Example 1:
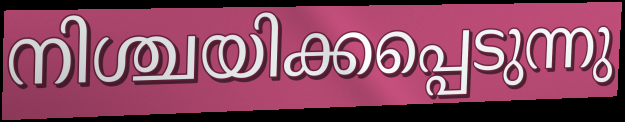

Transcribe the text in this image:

നിശ്ചയിക്കപ്പെടുന്നു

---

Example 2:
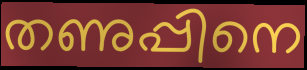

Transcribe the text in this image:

തണുപ്പിനെ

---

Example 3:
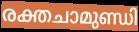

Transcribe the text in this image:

രക്തചാമുണ്ഡി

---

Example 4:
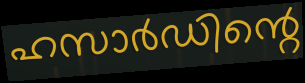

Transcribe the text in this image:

ഹസാർഡിന്റെ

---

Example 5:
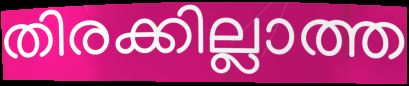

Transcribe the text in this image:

തിരക്കില്ലാത്ത